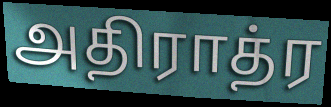
அதிராத்ர